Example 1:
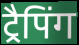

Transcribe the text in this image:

ट्रैपिंग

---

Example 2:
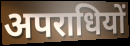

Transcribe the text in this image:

अपराधियों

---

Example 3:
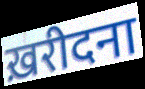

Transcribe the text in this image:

ख़रीदना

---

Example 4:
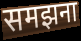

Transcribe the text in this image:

समझना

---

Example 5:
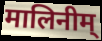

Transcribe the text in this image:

मालिनीम्